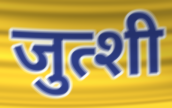
जुत्शी